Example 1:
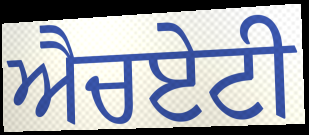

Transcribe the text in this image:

ਐਚਏਟੀ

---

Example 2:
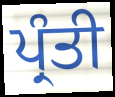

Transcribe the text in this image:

ਪ੍ਰੰਤੀ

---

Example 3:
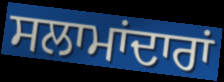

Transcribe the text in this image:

ਸਲਾਮਾਂਦਾਰਾਂ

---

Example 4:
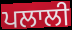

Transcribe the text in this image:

ਪਲਾਲੀ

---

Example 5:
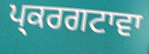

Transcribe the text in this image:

ਪ੍ਕਰਗਟਾਵਾ